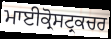
ਮਾਈਕ੍ਰੋਸਟ੍ਰਕਚਰ